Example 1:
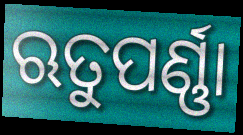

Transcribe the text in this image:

ଋତୁପର୍ଣ୍ଣା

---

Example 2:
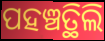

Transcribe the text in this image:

ପହଞ୍ଚତ୍ଥିଲି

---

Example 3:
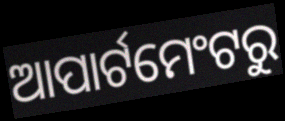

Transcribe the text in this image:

ଆପାର୍ଟମେଂଟରୁ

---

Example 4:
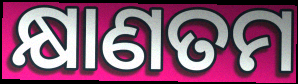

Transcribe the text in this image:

କ୍ଷାଣତମ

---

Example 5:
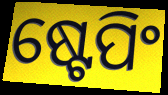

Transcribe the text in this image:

ଷ୍ଟେପିଂ